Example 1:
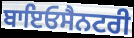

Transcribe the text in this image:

ਬਾਇਓਸੈਨਟਰੀ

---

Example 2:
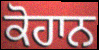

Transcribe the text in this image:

ਕੋਹਾਨ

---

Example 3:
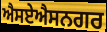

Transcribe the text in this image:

ਐਸਏਐਸਨਗਰ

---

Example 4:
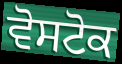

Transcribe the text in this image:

ਵੋਸਟੋਕ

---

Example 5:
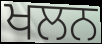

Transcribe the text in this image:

ਖਲਨ